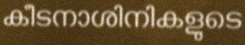
കീടനാശിനികളുടെ